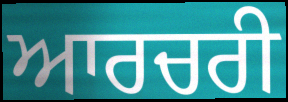
ਆਰਚਰੀ